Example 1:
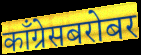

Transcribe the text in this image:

काँग्रेसबरोबर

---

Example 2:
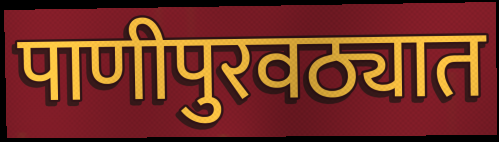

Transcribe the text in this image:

पाणीपुरवठ्यात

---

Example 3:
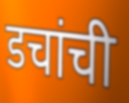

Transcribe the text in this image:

डचांची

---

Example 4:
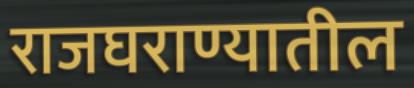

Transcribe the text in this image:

राजघराण्यातील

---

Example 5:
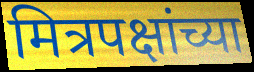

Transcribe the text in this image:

मित्रपक्षांच्या